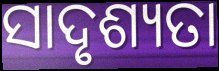
ସାଦୃଶ୍ୟତା